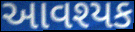
આવશ્યક